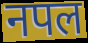
नपल